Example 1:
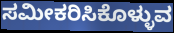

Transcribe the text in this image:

ಸಮೀಕರಿಸಿಕೊಳ್ಳುವ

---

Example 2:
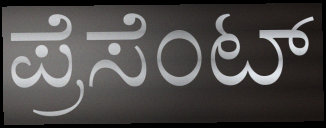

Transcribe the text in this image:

ಪ್ರೆಸೆಂಟ್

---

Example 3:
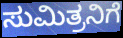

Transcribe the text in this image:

ಸುಮಿತ್ರನಿಗೆ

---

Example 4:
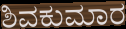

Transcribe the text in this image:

ಶಿವಕುಮಾರ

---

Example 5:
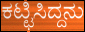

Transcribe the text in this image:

ಕಟ್ಟಿಸಿದ್ದನು